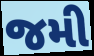
જમી